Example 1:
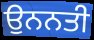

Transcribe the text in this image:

ਉਨਨਤੀ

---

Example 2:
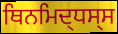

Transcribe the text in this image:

ਥਿਨਮਿਦ੍ਧਸ੍ਸ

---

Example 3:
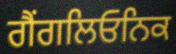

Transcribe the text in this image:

ਗੈਂਗਲਿਓਨਿਕ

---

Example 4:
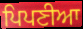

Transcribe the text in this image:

ਪਿਪਣੀਆ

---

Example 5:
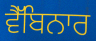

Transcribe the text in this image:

ਵੈੱਬਿਨਾਰ